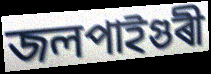
জলপাইগুৰী